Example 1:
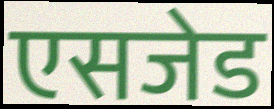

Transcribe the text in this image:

एसजेड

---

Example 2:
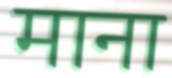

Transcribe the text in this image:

माना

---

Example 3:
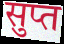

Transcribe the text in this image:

सुप्त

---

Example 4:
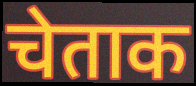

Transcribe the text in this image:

चेताक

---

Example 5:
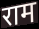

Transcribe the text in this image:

राम